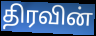
திரவின்